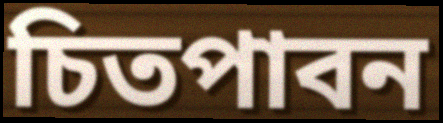
চিতপাবন